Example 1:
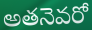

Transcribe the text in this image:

అతనెవరో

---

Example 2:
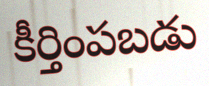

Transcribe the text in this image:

కీర్తింపబడు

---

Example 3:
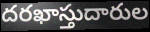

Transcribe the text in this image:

దరఖాస్తుదారుల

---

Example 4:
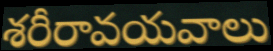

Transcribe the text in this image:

శరీరావయవాలు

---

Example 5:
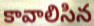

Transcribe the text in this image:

కావాలిసిన